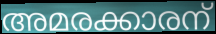
അമരക്കാരന്